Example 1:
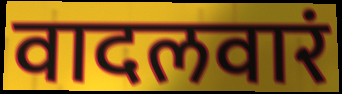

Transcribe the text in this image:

वादलवारं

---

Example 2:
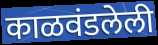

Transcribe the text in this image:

काळवंडलेली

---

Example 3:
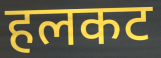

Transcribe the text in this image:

हलकट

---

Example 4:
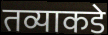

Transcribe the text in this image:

तव्याकडे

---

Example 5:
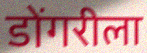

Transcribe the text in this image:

डोंगरीला